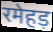
रमेहड़